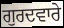
ਗੁਰਦਵਾਰੇ